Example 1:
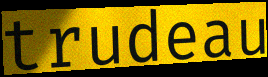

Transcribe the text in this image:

trudeau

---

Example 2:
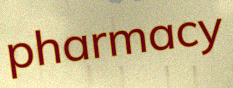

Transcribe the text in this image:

pharmacy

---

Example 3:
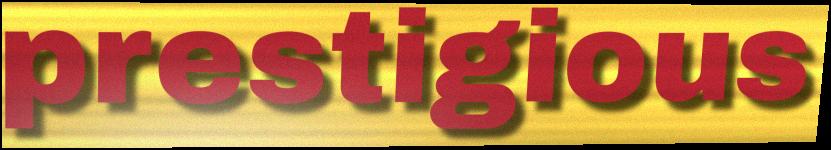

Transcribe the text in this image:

prestigious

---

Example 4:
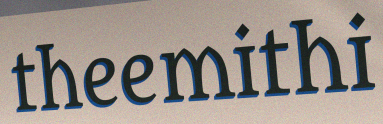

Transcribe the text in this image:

theemithi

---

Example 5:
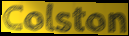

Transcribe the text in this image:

Colston